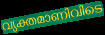
വ്യക്തമാണിവിടെ